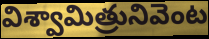
విశ్వామిత్రునివెంట